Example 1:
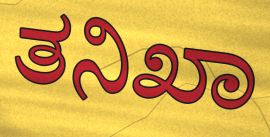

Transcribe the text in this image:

ತನಿಖಾ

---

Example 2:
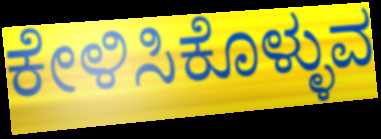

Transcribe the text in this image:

ಕೇಳಿಸಿಕೊಳ್ಳುವ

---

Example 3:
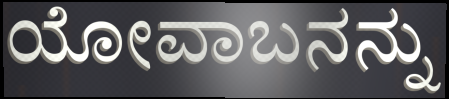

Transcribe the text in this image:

ಯೋವಾಬನನ್ನು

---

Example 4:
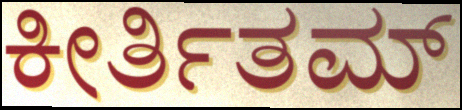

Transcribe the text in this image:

ಕೀರ್ತಿತಮ್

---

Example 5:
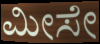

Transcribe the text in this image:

ಮೀಸೇ